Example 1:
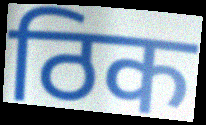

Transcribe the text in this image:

ठिक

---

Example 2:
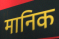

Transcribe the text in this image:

मानिक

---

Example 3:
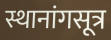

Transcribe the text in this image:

स्थानांगसूत्र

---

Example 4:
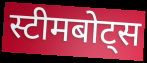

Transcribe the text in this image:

स्टीमबोट्स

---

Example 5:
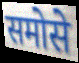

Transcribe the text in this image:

समोसे